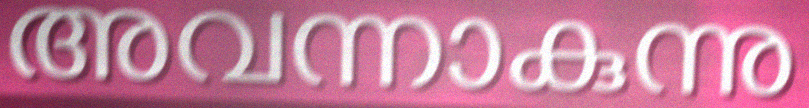
അവന്നാകുന്നു